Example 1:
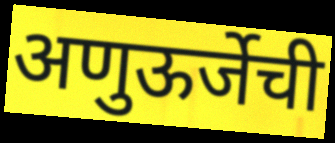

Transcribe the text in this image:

अणुऊर्जेची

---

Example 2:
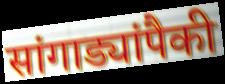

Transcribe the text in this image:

सांगाड्यांपैकी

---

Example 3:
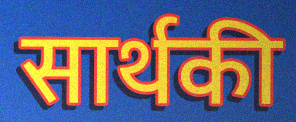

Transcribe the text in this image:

सार्थकी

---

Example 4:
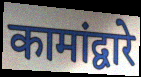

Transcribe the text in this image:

कामांद्वारे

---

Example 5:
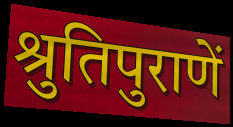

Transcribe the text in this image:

श्रुतिपुराणें